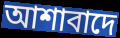
আশাবাদে